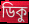
ডিকু